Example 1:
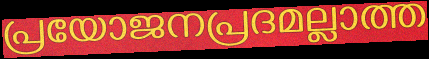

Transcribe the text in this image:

പ്രയോജനപ്രദമല്ലാത്ത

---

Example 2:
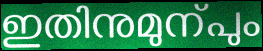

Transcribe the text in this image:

ഇതിനുമുന്പും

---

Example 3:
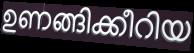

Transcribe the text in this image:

ഉണങ്ങിക്കീറിയ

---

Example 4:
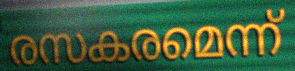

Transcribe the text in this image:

രസകരമെന്ന്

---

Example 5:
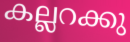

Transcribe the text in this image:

കല്ലറക്കു